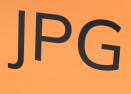
JPG